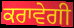
ਕਰਾਵੇਗੀ